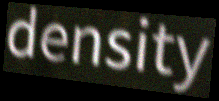
density